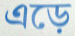
এড়ে